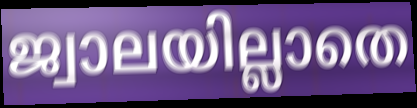
ജ്വാലയില്ലാതെ